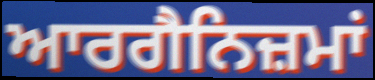
ਆਰਗੈਨਿਜ਼ਮਾਂ